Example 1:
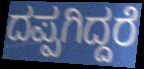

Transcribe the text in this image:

ದಪ್ಪಗಿದ್ದರೆ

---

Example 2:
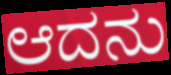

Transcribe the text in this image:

ಆದನು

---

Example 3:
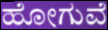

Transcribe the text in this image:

ಹೋಗುವೆ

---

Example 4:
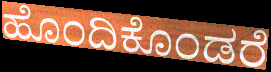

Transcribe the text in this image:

ಹೊಂದಿಕೊಂಡರೆ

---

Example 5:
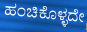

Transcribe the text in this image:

ಹಂಚಿಕೊಳ್ಳದೇ